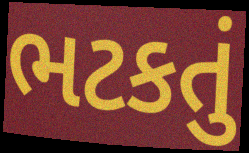
ભટકતું